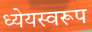
ध्येयस्वरूप